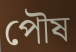
পৌষ